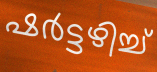
ഷർട്ടഴിച്ച്